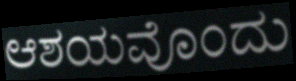
ಆಶಯವೊಂದು